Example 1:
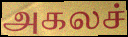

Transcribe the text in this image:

அகலச்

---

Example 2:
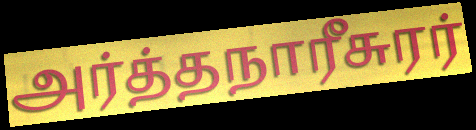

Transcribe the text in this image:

அர்த்தநாரீசுரர்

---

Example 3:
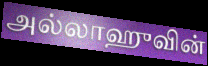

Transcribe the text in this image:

அல்லாஹுவின்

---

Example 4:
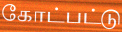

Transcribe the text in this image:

கோட்பட்டு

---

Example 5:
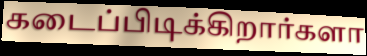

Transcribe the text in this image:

கடைப்பிடிக்கிறார்களா